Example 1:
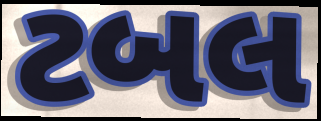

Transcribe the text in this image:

ટબલ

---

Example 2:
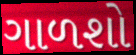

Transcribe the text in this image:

ગાળશો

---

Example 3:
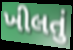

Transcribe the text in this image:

ખીલતું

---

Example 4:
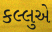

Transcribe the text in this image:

કલ્લુએ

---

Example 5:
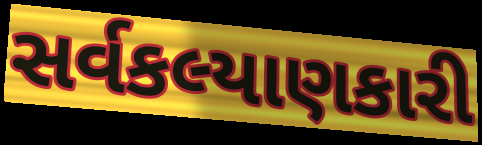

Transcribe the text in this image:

સર્વકલ્યાણકારી